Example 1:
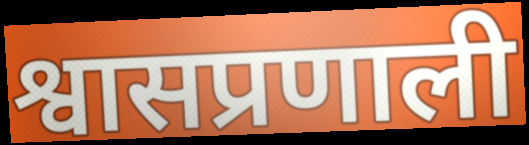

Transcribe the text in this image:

श्वासप्रणाली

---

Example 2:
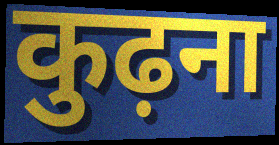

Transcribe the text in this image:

कुढ़ना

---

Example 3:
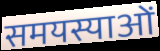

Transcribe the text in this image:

समयस्याओं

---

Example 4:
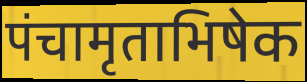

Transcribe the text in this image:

पंचामृताभिषेक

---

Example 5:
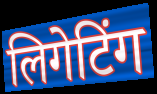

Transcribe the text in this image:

लिगेटिंग